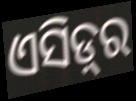
ଏସିଡ଼୍‌ର